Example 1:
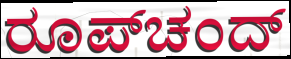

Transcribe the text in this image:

ರೂಪ್‌ಚಂದ್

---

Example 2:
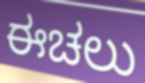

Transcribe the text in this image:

ಈಚಲು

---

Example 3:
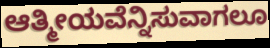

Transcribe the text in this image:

ಆತ್ಮೀಯವೆನ್ನಿಸುವಾಗಲೂ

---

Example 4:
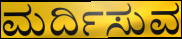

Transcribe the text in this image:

ಮರ್ದಿಸುವ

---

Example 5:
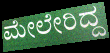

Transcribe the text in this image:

ಮೇಲೇರಿದ್ದ